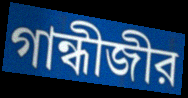
গান্ধীজীর